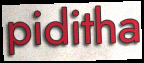
piditha